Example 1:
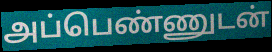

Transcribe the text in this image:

அப்பெண்ணுடன்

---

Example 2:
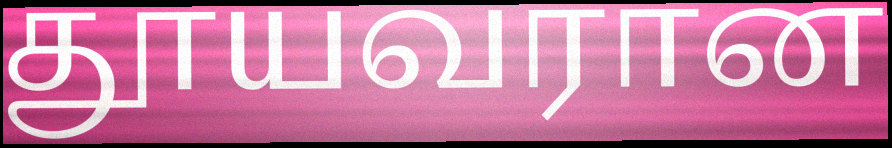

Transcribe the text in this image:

தூயவரான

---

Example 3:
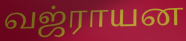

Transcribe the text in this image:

வஜ்ராயன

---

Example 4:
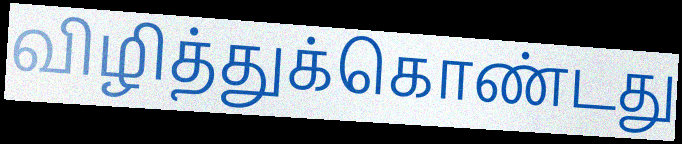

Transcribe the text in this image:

விழித்துக்கொண்டது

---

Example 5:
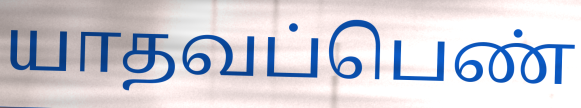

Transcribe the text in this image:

யாதவப்பெண்